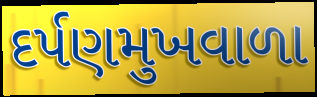
દર્પણમુખવાળા